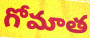
గోమాత